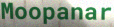
Moopanar